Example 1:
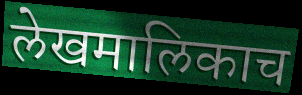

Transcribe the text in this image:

लेखमालिकाच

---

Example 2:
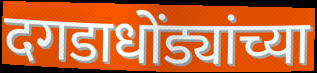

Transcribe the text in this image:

दगडाधोंड्यांच्या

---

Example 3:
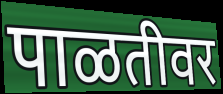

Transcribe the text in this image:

पाळतीवर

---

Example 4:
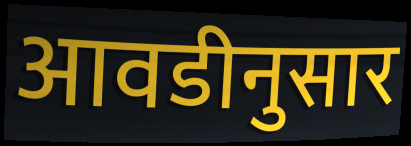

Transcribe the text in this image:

आवडीनुसार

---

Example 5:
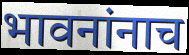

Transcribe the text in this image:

भावनांनाच